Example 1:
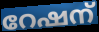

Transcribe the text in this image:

റേഷന്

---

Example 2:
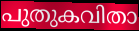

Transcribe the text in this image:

പുതുകവിതാ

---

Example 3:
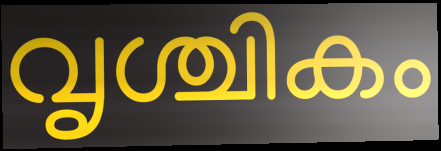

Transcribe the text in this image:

വൃശ്ചികം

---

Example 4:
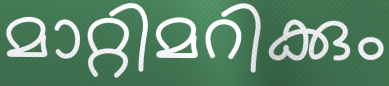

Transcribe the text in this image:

മാറ്റിമറിക്കും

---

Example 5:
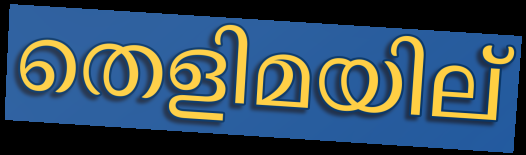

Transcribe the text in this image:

തെളിമയില്